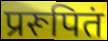
प्ररूपितं